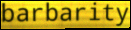
barbarity